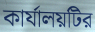
কার্যালয়টির